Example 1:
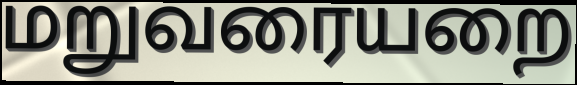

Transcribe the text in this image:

மறுவரையறை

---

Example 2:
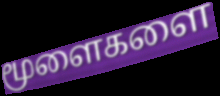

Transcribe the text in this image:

மூளைகளை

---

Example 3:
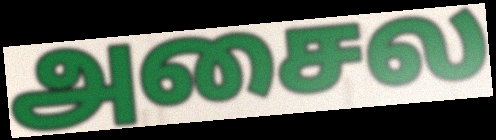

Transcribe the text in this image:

அசைல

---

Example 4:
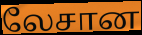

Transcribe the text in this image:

லேசான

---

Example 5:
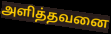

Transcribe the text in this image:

அளித்தவனை